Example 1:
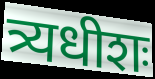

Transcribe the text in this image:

त्र्यधीशः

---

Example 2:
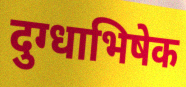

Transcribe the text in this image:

दुग्धाभिषेक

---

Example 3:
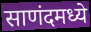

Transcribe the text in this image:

साणंदमध्ये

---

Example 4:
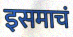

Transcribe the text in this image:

इसमाचं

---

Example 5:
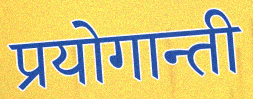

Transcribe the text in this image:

प्रयोगान्ती